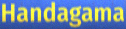
Handagama